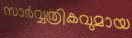
സാർവ്വത്രികവുമായ